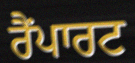
ਰੈਂਪਾਰਟ